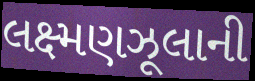
લક્ષ્મણઝૂલાની